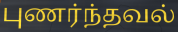
புணர்ந்தவல்